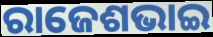
ରାଜେଶଭାଇ